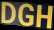
DGH